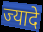
ज्यादे